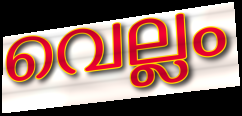
വെല്ലം